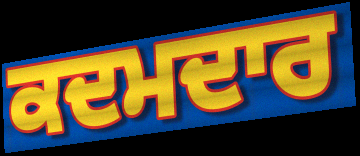
ਕਦਮਦਾਰ